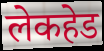
लेकहेड